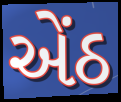
એંઠ